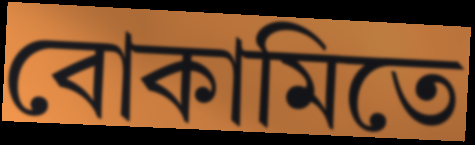
বোকামিতে